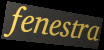
fenestra